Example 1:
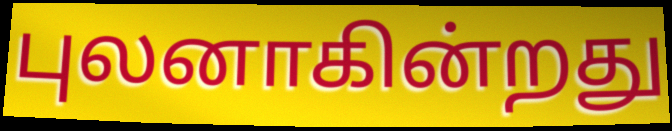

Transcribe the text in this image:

புலனாகின்றது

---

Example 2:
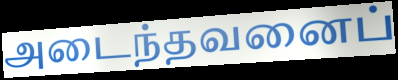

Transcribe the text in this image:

அடைந்தவனைப்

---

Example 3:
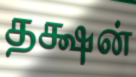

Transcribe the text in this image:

தக்ஷன்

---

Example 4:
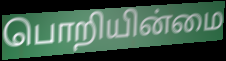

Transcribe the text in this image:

பொறியின்மை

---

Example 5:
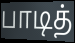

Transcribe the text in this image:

பாடித்